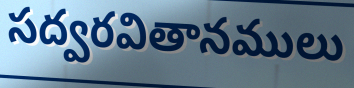
సద్వరవితానములు